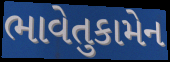
ભાવેતુકામેન